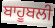
ਬਾਹੂਬਲੀ